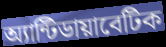
অ্যান্টিডায়াবেটিক